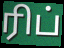
ரிப்